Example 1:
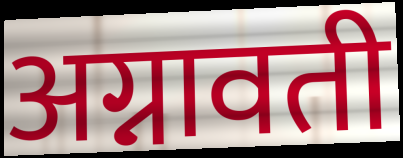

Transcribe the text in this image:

अग्नावती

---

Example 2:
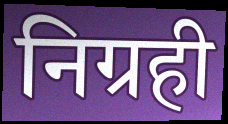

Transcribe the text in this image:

निग्रही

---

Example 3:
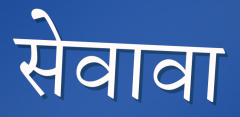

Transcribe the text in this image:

सेवावा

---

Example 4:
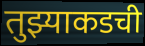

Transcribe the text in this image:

तुझ्याकडची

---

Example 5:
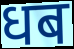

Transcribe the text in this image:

धब